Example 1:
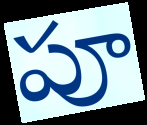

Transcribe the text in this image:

పూ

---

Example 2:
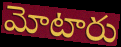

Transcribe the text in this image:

మోటారు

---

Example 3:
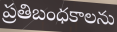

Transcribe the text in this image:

ప్రతిబంధకాలను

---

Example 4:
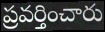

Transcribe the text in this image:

ప్రవర్తించారు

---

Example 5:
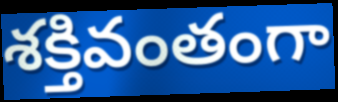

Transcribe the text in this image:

శక్తివంతంగా